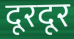
दूरदूर